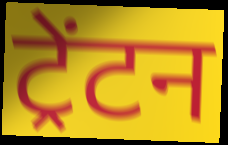
ट्रेंटन